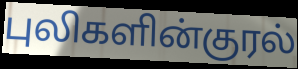
புலிகளின்குரல்